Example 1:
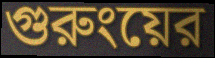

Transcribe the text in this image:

গুরুংয়ের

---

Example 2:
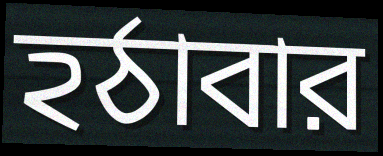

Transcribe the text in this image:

হঠাবার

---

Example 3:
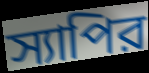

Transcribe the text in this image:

স্যাপির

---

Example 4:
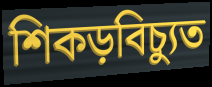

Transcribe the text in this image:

শিকড়বিচ্যুত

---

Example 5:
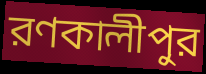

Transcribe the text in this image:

রণকালীপুর